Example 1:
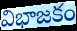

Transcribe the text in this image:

విభాజకం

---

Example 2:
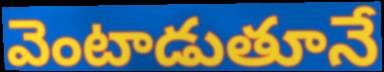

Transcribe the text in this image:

వెంటాడుతూనే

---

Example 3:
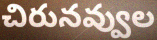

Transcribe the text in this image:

చిరునవ్వుల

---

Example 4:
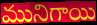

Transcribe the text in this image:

మునిగాయి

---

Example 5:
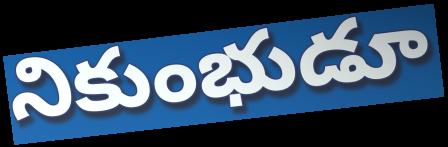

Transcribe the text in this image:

నికుంభుడూ